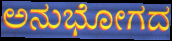
ಅನುಭೋಗದ